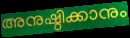
അനുഷ്ഠിക്കാനും